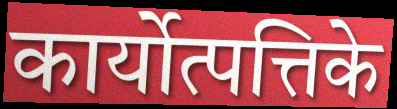
कार्योत्पत्तिके